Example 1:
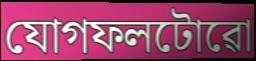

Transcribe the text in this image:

যোগফলটোৱো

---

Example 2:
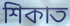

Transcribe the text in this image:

শিকাত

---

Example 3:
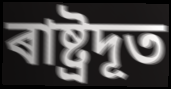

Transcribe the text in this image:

ৰাষ্ট্ৰদূত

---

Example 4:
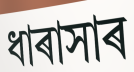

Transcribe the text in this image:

ধাৰাসাৰ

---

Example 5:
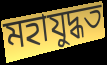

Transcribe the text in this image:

মহাযুদ্ধত